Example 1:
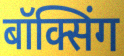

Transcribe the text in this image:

बॉक्सिंग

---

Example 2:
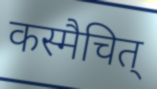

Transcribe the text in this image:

कस्मैचित्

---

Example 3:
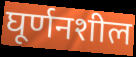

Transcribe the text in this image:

घूर्णनशील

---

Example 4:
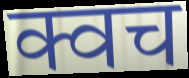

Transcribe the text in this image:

क्वच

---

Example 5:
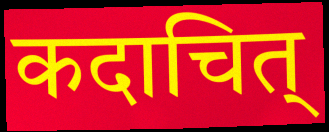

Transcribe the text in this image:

कदाचित्